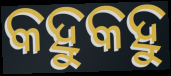
କହୁକହୁ